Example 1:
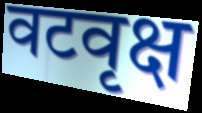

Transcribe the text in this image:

वटवृक्ष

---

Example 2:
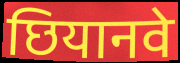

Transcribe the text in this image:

छियानवे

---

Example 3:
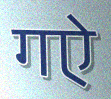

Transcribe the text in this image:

गऐ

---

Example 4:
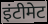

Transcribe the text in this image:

इंटीमेट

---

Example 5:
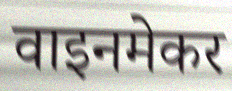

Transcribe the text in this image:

वाइनमेकर